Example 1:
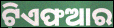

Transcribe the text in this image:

ଟିଏଫଆର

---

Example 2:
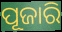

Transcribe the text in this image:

ପୂଜାରି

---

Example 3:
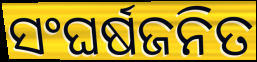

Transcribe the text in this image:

ସଂଘର୍ଷଜନିତ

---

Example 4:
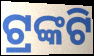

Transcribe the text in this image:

ଟ୍ରଙ୍କଟି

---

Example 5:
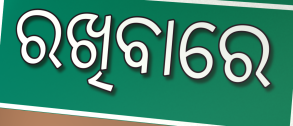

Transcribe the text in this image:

ରଖିବାରେ